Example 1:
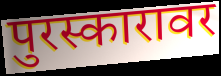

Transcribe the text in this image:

पुरस्कारावर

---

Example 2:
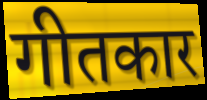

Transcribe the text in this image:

गीतकार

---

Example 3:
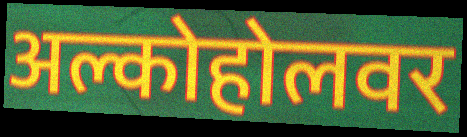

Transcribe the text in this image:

अल्कोहोलवर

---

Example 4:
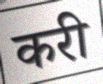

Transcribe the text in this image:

करी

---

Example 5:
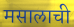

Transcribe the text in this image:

मसालाची